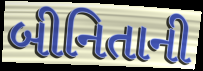
બીનિતાની